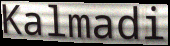
Kalmadi